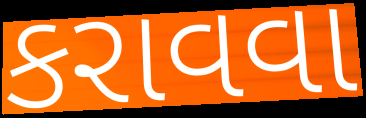
કરાવવા